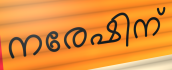
നരേഷിന്